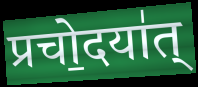
प्रचो॒दया॑त्